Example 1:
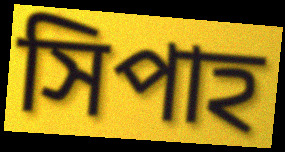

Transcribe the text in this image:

সিপাহ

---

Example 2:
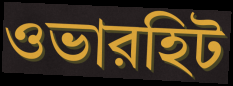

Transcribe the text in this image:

ওভারহিট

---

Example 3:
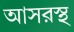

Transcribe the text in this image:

আসরস্থ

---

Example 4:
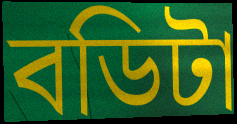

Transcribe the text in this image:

বডিটা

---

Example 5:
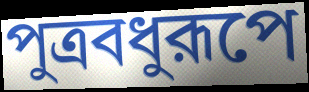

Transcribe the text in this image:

পুত্রবধুরূপে